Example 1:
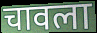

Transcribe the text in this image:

चावला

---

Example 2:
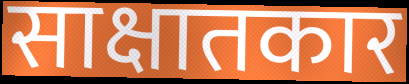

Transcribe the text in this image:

साक्षातकार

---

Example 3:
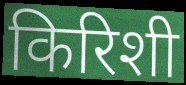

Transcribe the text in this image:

किरिशी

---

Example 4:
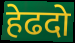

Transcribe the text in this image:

हेढदो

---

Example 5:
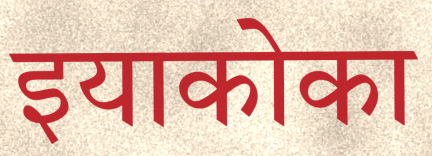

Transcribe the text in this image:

इयाकोका